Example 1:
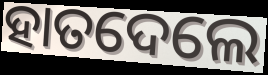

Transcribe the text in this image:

ହାତଦେଲେ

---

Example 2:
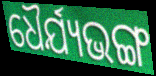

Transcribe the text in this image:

ଧୈର୍ଯ୍ୟଭଙ୍ଗ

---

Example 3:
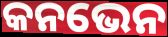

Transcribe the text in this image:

କନଭେନ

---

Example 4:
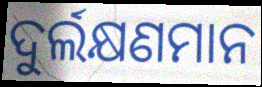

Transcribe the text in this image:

ଦୁର୍ଲକ୍ଷଣମାନ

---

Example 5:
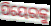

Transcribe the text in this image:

ପିୟେରକୁ